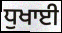
ਧੁਖਾਈ